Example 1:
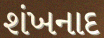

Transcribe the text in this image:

શંખનાદ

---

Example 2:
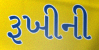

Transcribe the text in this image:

રૂખીની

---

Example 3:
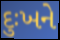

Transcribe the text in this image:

દુઃખને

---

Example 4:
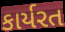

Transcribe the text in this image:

કાર્યરત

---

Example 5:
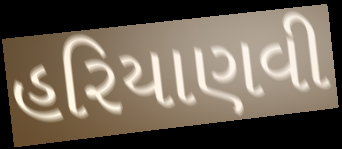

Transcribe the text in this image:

હરિયાણવી